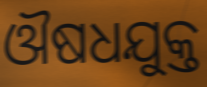
ଔଷଧଯୁକ୍ତ